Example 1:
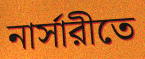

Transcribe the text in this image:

নার্সারীতে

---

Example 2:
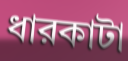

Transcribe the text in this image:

ধারকাটা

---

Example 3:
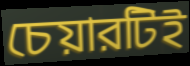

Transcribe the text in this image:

চেয়ারটিই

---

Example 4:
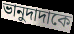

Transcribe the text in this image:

ভানুদাদাকে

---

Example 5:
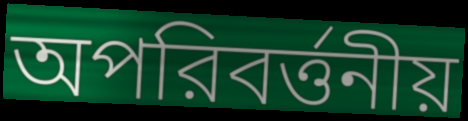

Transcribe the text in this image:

অপরিবর্ত্তনীয়